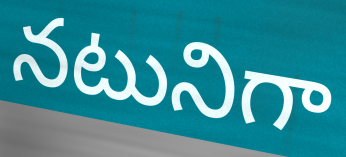
నటునిగా